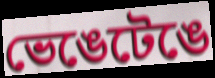
ভেঙেটেঙে